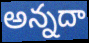
అన్నదా